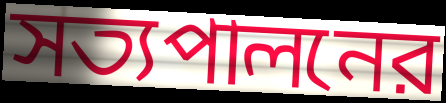
সত্যপালনের